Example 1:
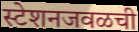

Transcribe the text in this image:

स्टेशनजवळची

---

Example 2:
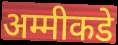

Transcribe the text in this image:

अम्मीकडे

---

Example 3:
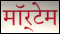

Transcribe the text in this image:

मॉर्टेम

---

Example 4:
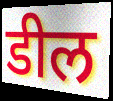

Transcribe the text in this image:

डील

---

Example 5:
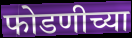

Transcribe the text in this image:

फोडणीच्या